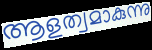
ആളത്വമാകുന്നു